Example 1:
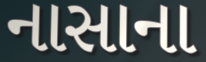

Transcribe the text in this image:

નાસાના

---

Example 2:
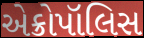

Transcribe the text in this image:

એક્રોપૉલિસ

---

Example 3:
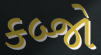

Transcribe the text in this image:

કબ્જો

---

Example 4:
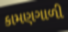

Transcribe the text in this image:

કામણગાળી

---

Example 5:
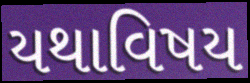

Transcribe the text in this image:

યથાવિષય